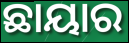
ଛାୟାର